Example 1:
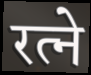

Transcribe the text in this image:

रत्ने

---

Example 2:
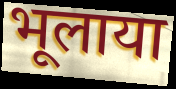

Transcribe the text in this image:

भूलाया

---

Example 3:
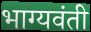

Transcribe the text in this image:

भाग्यवंती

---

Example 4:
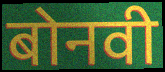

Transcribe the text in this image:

बोनवी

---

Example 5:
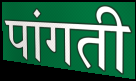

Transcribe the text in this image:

पांगती